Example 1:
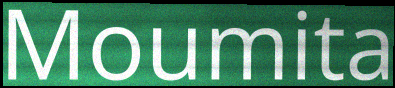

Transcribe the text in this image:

Moumita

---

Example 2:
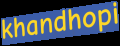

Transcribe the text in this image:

khandhopi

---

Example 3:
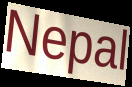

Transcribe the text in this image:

Nepal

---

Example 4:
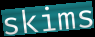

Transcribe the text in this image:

skims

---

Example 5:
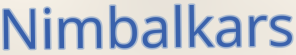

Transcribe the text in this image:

Nimbalkars